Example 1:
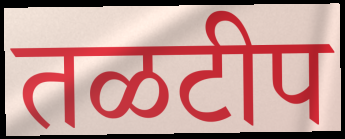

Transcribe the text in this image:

तळटीप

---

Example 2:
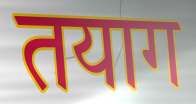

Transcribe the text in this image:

तयाग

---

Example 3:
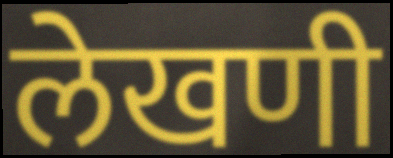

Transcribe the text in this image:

लेखणी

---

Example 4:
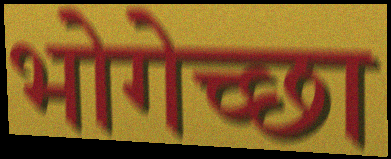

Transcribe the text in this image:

भोगेच्छा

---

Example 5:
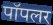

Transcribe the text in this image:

पॉपलर